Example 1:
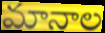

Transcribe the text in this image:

మానాల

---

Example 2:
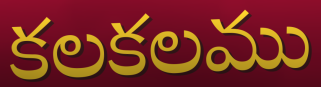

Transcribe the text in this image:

కలకలము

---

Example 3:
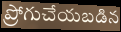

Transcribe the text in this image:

ప్రోగుచేయబడిన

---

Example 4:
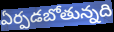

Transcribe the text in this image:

ఏర్పడబోతున్నది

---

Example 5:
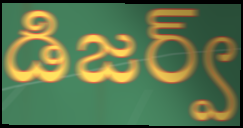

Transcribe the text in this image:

డిజర్వ్